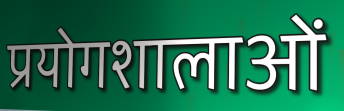
प्रयोगशालाओं